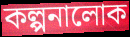
কল্পনালোক